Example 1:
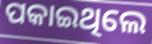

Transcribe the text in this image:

ପକାଇଥିଲେ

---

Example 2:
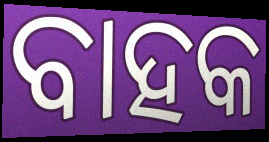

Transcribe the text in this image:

ବାହକ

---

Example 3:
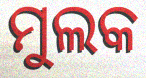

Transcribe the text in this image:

ମୁଲକ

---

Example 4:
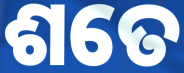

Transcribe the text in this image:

ଶତେ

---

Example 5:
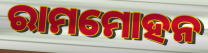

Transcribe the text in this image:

ରାମମୋହନ